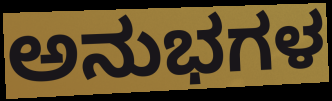
ಅನುಭಗಳ